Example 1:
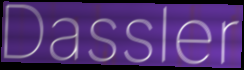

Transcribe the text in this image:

Dassler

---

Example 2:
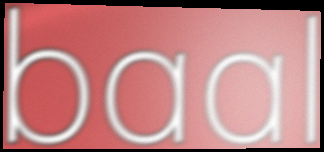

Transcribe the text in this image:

baal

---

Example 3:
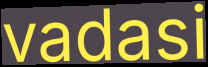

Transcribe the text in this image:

vadasi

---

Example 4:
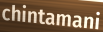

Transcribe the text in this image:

chintamani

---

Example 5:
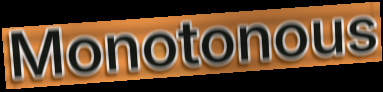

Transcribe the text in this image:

Monotonous